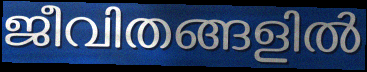
ജീവിതങ്ങളിൽ